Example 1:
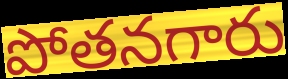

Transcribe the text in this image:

పోతనగారు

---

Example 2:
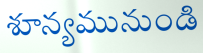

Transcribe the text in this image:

శూన్యమునుండి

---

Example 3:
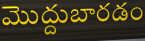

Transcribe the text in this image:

మొద్దుబారడం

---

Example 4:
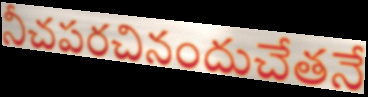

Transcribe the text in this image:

నీచపరచినందుచేతనే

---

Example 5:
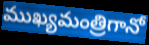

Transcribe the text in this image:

ముఖ్యమంత్రిగానో